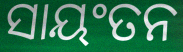
ସାୟଂତନ